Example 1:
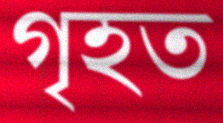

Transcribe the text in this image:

গৃহত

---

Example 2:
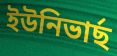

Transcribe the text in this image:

ইউনিভাৰ্ছ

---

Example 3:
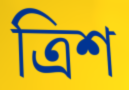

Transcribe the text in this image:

ত্ৰিশ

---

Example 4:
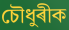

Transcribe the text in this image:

চৌধুৰীক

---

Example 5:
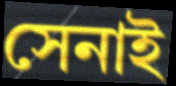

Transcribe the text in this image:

সেনাই